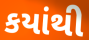
કયાંથી